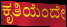
ಕೃತಿಯೆಂದೇ